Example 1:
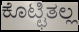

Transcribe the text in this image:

ಕೊಟ್ಟಿತಲ್ಲ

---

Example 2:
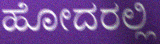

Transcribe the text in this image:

ಹೋದರಲ್ಲಿ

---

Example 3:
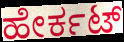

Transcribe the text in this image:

ಹೇರ್ಕಟ್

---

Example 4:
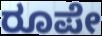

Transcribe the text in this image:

ರೂಪೇ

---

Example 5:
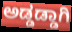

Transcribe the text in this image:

ಅಡ್ಡಡ್ಡಾಗಿ